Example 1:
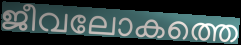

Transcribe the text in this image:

ജീവലോകത്തെ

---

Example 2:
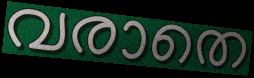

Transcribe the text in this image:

വരാതെ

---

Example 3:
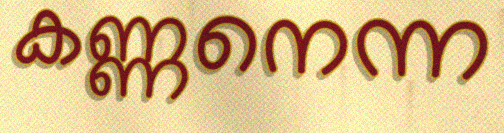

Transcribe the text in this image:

കണ്ണനെന്ന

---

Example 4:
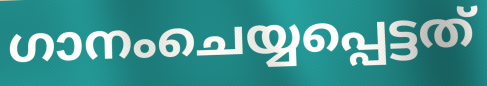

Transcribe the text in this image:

ഗാനംചെയ്യപ്പെട്ടത്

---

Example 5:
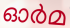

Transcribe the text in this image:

ഓർമ